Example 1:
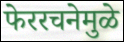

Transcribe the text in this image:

फेररचनेमुळे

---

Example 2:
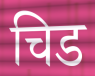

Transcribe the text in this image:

चिड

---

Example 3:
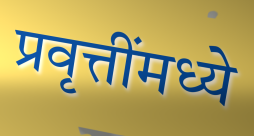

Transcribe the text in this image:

प्रवृत्तींमध्ये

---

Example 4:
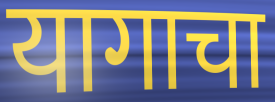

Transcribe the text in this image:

यागाचा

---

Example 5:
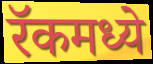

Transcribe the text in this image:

रॅकमध्ये